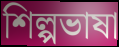
শিল্পভাষা